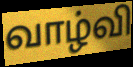
வாழ்வி